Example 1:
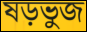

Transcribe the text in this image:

ষড়ভুজ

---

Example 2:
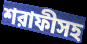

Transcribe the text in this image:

শরাফীসহ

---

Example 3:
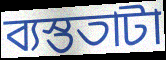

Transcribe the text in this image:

ব্যস্ততাটা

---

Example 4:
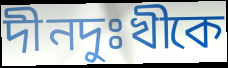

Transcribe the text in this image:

দীনদুঃখীকে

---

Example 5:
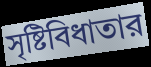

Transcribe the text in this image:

সৃষ্টিবিধাতার